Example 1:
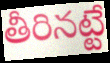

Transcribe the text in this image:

తీరినట్టే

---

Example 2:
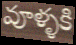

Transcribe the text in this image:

వూళ్ళకి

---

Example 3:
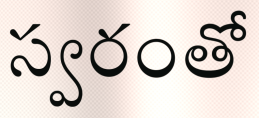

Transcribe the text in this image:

స్వరంతో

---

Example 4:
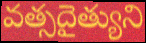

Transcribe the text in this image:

వత్సదైత్యుని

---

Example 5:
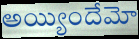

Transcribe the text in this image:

అయ్యిందేమో